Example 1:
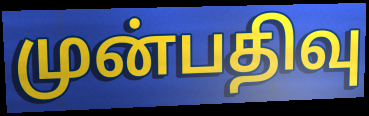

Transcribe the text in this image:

முன்பதிவு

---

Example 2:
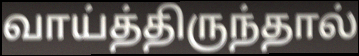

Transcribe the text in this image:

வாய்த்திருந்தால்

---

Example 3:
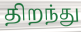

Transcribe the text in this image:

திறந்து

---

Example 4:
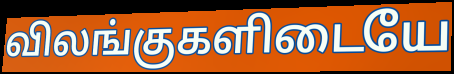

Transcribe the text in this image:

விலங்குகளிடையே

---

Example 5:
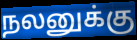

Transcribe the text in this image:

நலனுக்கு